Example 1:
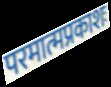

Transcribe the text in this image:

परमात्मप्रकाशः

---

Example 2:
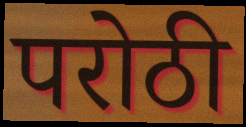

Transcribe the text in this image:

परोठी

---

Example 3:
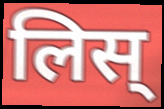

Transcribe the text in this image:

लिस्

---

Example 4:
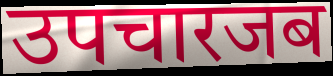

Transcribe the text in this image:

उपचारजब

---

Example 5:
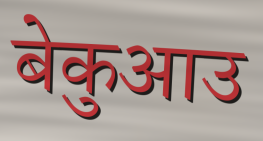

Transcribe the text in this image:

बेकुआउ